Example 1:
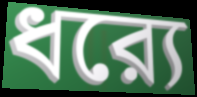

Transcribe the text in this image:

ধর‍্যে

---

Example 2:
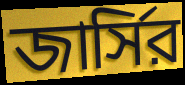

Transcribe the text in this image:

জার্সির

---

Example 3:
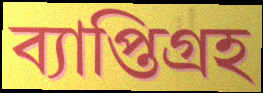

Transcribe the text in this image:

ব্যাপ্তিগ্রহ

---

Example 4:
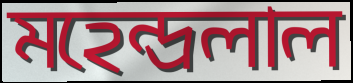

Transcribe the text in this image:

মহেন্দ্রলাল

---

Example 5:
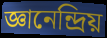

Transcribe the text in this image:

জ্ঞানেন্দ্রিয়